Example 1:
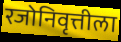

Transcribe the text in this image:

रजोनिवृत्तीला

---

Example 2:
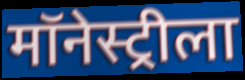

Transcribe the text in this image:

मॉनेस्ट्रीला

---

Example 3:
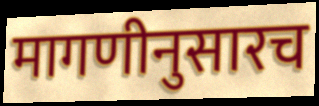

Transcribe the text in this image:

मागणीनुसारच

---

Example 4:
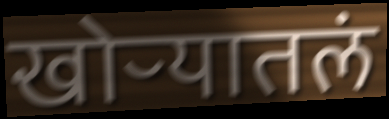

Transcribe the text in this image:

खोऱ्यातलं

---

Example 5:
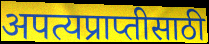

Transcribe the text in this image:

अपत्यप्राप्तीसाठी